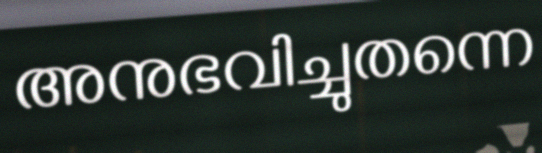
അനുഭവിച്ചുതന്നെ